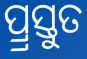
ପ୍ର୍ରସ୍ତୁତ